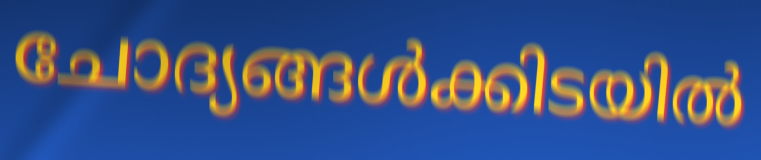
ചോദ്യങ്ങൾക്കിടയിൽ